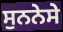
ਸੁਨਨੇਸੇ